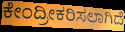
ಕೇಂದ್ರೀಕರಿಸಲಾಗಿದೆ